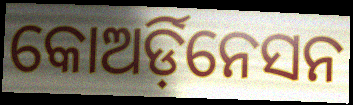
କୋଅର୍ଡ଼ିନେସନ